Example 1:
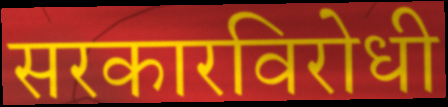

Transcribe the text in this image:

सरकारविरोधी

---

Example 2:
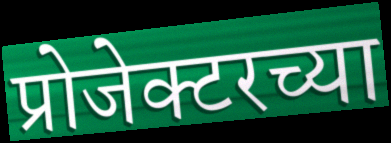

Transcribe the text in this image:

प्रोजेक्टरच्या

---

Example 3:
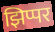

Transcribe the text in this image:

झिप्पर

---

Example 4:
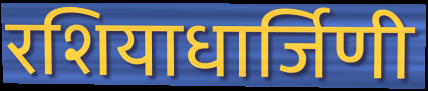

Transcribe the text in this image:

रशियाधार्जिणी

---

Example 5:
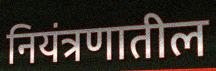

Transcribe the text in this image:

नियंत्रणातील